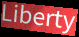
Liberty